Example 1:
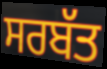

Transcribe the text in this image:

ਸਰਬੱਤ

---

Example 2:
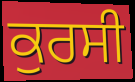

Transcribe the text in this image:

ਕੁਰਸੀ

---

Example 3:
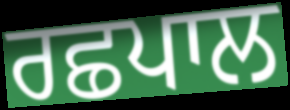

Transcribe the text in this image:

ਰਛਪਾਲ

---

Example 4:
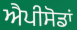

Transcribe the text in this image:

ਐਪੀਸੋਡਾਂ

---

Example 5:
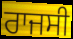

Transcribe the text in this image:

ਰਾਜਸੀ